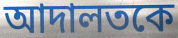
আদালতকে